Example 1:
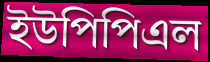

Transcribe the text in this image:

ইউপিপিএল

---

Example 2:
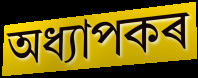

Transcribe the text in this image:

অধ্যাপকৰ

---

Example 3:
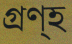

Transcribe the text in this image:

গ্ৰণ্হ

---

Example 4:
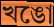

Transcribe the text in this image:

খঙো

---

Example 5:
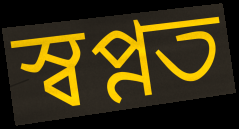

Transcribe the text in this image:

স্বপ্নত